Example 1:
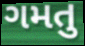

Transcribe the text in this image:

ગમતુ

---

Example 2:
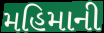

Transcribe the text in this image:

મહિમાની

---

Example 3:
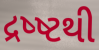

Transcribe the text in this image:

દ્રષ્ષ્ટથી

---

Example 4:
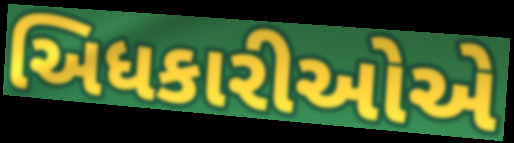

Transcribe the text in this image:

અિધકારીઓએ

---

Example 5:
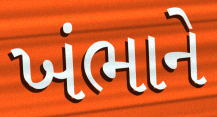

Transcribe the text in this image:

ખંભાને